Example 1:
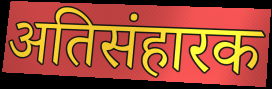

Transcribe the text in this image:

अतिसंहारक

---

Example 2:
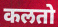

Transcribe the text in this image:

कलतो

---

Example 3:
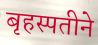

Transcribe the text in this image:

बृहस्पतीने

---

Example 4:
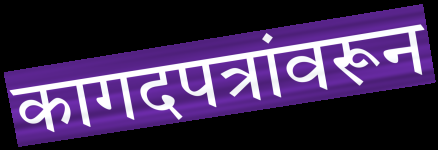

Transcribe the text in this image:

कागदपत्रांवरून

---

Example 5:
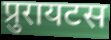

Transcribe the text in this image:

प्रुरायटस